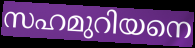
സഹമുറിയനെ